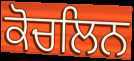
ਕੋਚਲਿਨ